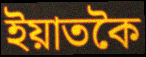
ইয়াতকৈ